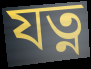
যত্ন